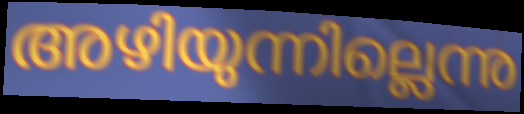
അഴിയുന്നില്ലെന്നു